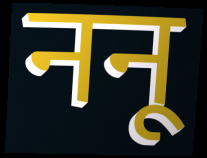
ननू